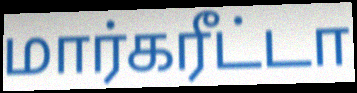
மார்கரீட்டா